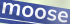
moose